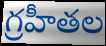
గ్రహీతల